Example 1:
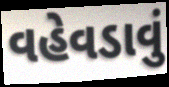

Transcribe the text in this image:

વહેવડાવું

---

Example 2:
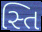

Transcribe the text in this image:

સ્તિ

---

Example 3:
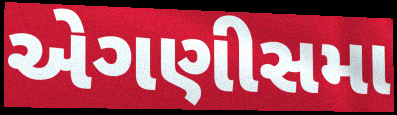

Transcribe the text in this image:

એગણીસમા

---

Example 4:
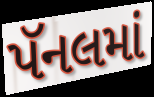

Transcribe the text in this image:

પૅનલમાં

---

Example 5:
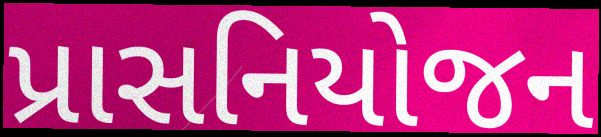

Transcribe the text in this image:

પ્રાસનિયોજન